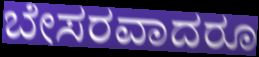
ಬೇಸರವಾದರೂ